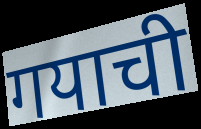
गयाची